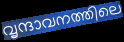
വൃന്ദാവനത്തിലെ